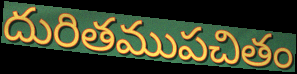
దురితముపచితం